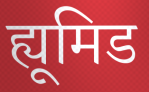
ह्यूमिड